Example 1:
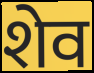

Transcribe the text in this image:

शेव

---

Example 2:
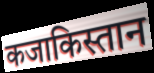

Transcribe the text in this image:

कजाकिस्तान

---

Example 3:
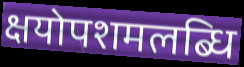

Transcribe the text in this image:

क्षयोपशमलब्धि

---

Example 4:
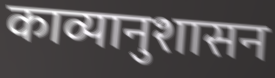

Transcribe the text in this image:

काव्यानुशासन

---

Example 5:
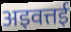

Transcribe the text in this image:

अइवत्तई